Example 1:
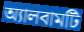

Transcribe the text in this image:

অ্যালবামটি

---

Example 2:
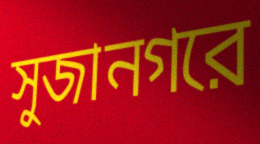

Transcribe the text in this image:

সুজানগরে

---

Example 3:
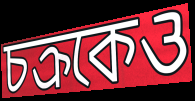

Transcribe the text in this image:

চক্রকেও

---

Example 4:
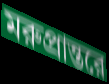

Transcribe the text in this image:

মরুপ্রান্তরে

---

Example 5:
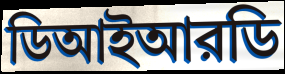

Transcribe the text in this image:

ডিআইআরডি